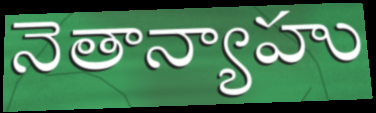
నెతాన్యాహు